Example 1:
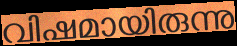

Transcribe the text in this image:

വിഷമായിരുന്നു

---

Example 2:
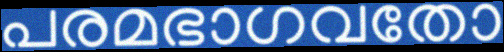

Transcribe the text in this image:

പരമഭാഗവതോ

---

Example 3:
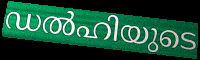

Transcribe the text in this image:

ഡൽഹിയുടെ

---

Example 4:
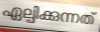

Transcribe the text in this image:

ഏല്പിക്കുന്നത്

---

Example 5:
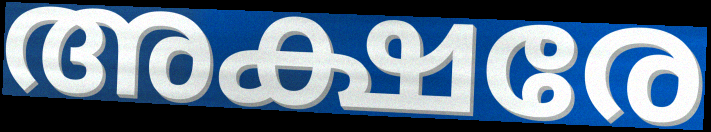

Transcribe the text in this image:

അക്ഷരേ